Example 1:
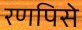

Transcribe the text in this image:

रणपिसे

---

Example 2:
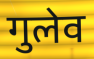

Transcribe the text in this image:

गुलेव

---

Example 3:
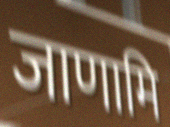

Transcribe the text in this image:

जाणामि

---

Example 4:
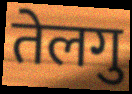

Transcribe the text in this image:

तेलगु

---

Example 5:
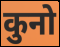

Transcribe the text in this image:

कुनो